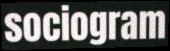
sociogram